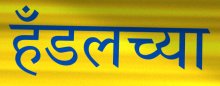
हँडलच्या